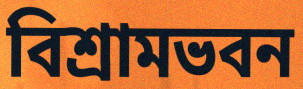
বিশ্রামভবন